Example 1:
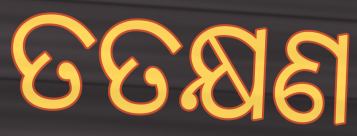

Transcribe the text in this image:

ତତକ୍ଷଣ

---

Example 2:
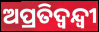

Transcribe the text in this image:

ଅପ୍ରତିଦ୍ବନ୍ଦ୍ବୀ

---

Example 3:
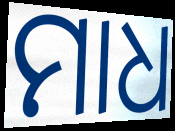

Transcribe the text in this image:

ମାଧ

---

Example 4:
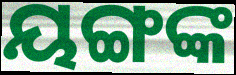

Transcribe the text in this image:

ୟଙ୍ଗଙ୍କ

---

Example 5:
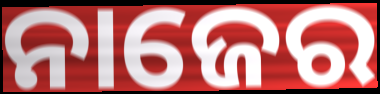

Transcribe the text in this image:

ନାଜେର